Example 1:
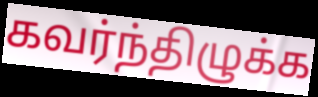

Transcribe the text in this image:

கவர்ந்திழுக்க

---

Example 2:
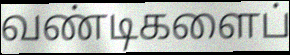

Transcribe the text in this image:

வண்டிகளைப்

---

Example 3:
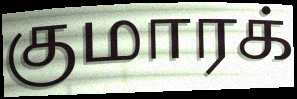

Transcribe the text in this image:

குமாரக்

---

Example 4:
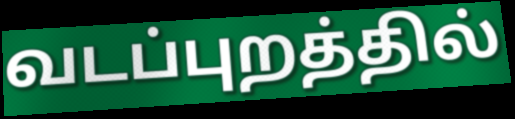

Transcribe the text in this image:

வடப்புறத்தில்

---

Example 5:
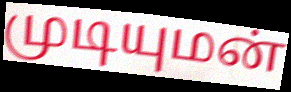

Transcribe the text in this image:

முடியுமன்